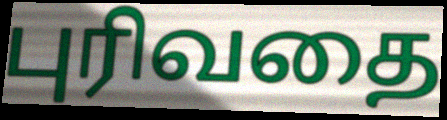
புரிவதை